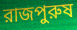
রাজপুরুষ